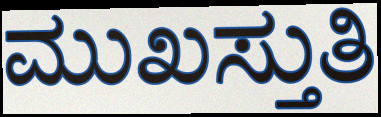
ಮುಖಸ್ತುತಿ